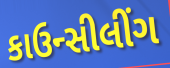
કાઉન્સીલીંગ